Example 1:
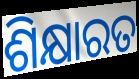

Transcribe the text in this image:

ଶିକ୍ଷାରତ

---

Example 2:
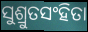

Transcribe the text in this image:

ସୁଶ୍ରୁତସଂହିତା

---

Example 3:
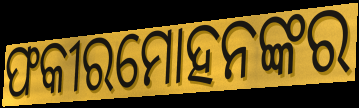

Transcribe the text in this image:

ଫକୀରମୋହନଙ୍କର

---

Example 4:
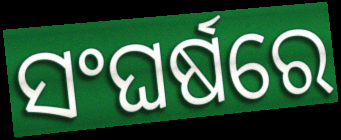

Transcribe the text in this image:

ସଂଘର୍ଷରେ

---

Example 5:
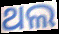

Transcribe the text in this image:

ଥଲ